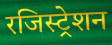
रजिस्‍ट्रेशन